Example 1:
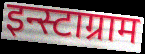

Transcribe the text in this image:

इन्स्टाग्राम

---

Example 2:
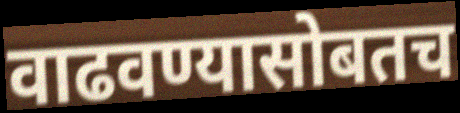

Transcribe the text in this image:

वाढवण्यासोबतच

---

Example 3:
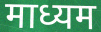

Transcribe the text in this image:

माध्यम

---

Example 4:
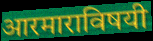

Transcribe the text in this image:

आरमाराविषयी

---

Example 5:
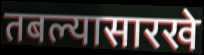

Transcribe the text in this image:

तबल्यासारखे